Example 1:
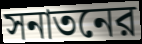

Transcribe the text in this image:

সনাতনের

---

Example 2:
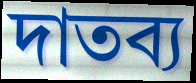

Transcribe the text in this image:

দাতব্য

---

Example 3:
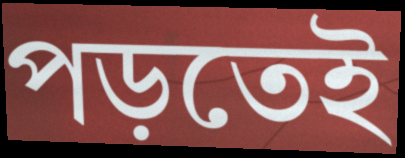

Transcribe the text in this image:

পড়তেই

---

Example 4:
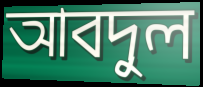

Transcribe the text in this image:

আবদুল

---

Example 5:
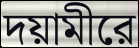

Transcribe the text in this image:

দয়ামীরে